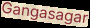
Gangasagar